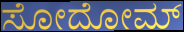
ಸೋದೋಮ್